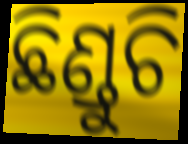
ଛିଣ୍ଡୁଚି